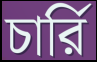
চার্রি